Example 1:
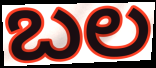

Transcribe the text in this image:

ಬಲ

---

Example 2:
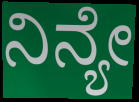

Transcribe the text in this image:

ನಿನ್ಯೇ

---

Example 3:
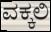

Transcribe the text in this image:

ವಕ್ಕಲಿ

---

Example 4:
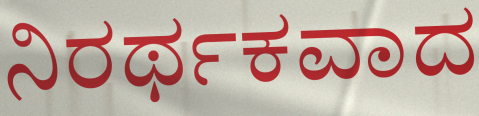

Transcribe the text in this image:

ನಿರರ್ಥಕವಾದ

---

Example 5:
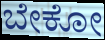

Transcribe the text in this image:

ಬೇಕೋ